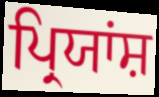
ਪ੍ਰਿਯਾਂਸ਼